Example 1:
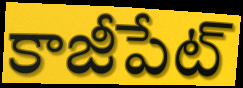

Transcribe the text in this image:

కాజీపేట్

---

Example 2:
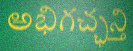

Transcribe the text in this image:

అభిగచ్ఛన్తి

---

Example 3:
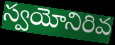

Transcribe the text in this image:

స్వయోనిరివ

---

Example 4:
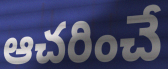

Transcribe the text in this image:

ఆచరించే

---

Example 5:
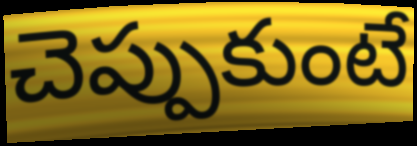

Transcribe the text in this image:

చెప్పుకుంటే